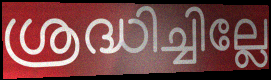
ശ്രദ്ധിച്ചില്ലേ